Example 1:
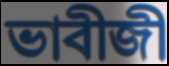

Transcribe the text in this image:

ভাবীজী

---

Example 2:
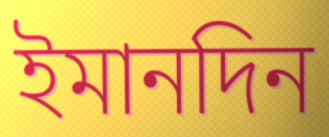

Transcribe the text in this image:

ইমানদিন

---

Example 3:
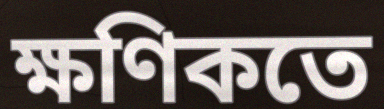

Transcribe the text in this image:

ক্ষণিকতে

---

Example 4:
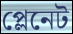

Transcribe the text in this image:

প্লেনেট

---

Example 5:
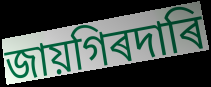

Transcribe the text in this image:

জায়গিৰদাৰি